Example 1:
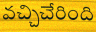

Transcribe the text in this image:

వచ్చిచేరింది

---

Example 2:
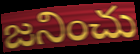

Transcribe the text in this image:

జనించు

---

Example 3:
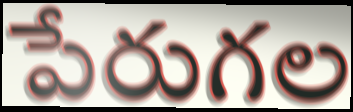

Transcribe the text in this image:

పేరుగల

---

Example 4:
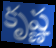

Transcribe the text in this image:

కృష్ణ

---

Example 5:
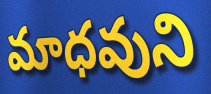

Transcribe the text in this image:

మాధవుని